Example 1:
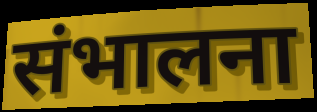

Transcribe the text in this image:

संभालना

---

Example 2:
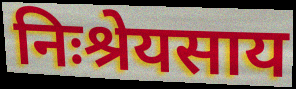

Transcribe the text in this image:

निःश्रेयसाय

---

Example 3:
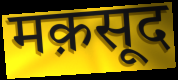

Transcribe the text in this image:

मक़सूद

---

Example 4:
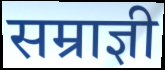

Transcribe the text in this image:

सम्राज्ञी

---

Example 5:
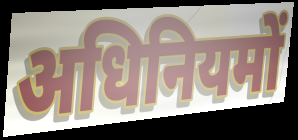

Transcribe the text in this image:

अधिनियमों